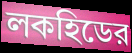
লকহিডের